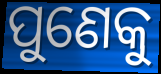
ପୁଣେକୁ